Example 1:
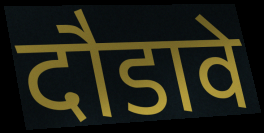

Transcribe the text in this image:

दौडावे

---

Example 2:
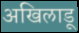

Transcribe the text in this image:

अखिलाडू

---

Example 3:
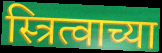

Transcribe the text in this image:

स्त्रित्वाच्या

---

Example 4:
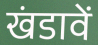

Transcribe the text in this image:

खंडावें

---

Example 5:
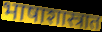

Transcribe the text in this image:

भाषाशास्त्रात